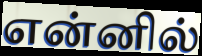
என்னில்